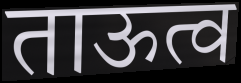
ताऊत्व